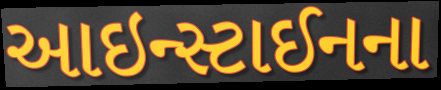
આઇન્સ્ટાઈનના